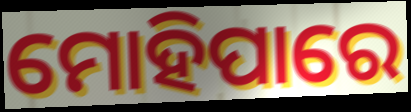
ମୋହିପାରେ